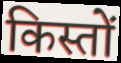
किस्तों